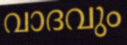
വാദവും